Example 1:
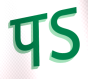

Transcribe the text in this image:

पऽ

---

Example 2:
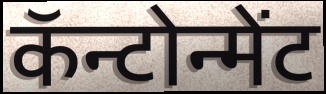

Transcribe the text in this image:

कॅन्टोन्मेंट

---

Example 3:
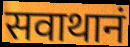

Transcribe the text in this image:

सवाथानं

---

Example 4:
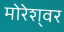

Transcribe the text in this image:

मोरेश्वर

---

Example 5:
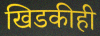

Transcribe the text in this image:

खिडकीही